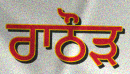
ਰਾਠੌੜ